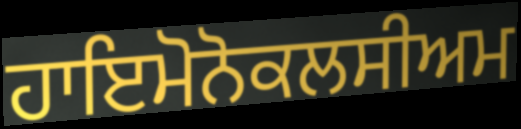
ਹਾਇਮੋਨੋਕਲਸੀਅਮ